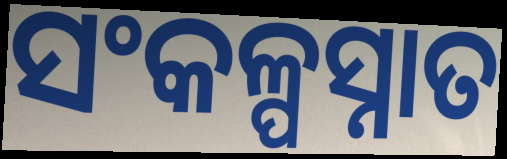
ସଂକଳ୍ପସ୍ନାତ